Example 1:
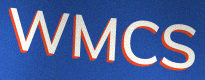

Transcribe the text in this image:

WMCS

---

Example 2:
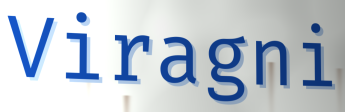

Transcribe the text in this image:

Viragni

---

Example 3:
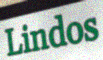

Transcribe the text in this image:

Lindos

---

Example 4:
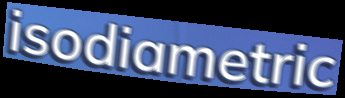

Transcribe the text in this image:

isodiametric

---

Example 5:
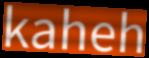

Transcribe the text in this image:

kaheh